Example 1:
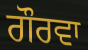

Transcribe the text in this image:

ਗੌਰਵਾ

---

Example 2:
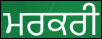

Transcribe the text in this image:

ਮਰਕਰੀ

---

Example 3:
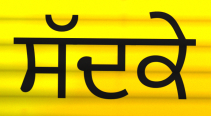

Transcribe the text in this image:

ਸੱਦਕੇ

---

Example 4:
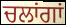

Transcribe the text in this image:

ਚਲਾਂਗਾਂ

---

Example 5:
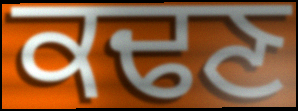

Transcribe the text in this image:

ਕਢਣ